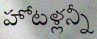
హోటళ్లన్నీ